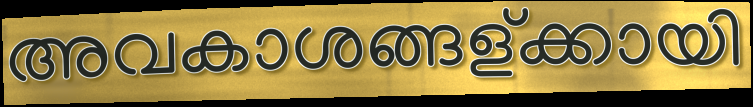
അവകാശങ്ങള്ക്കായി